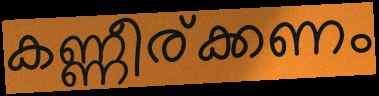
കണ്ണീര്ക്കണം